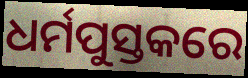
ଧର୍ମପୁସ୍ତକରେ